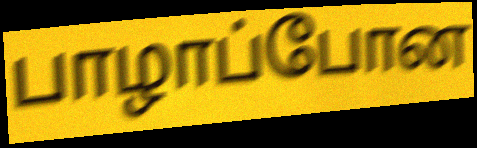
பாழாப்போன